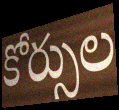
కోర్సుల